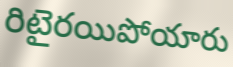
రిటైరయిపోయారు